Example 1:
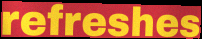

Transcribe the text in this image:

refreshes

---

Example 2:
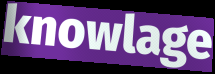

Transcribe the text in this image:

knowlage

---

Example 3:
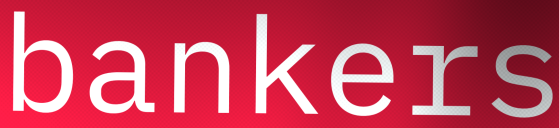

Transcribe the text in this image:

bankers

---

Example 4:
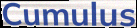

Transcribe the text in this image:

Cumulus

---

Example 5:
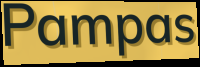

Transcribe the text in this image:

Pampas